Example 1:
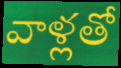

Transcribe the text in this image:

వాళ్లతో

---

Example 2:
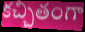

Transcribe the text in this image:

కచ్చితంగా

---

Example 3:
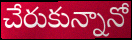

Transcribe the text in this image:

చేరుకున్నానో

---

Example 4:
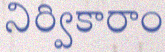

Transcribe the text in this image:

నిర్వికారాం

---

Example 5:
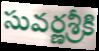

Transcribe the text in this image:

సువర్ణశ్రీకి